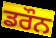
ਡਰੌਨ